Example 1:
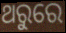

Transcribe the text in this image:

ଥରୁରେ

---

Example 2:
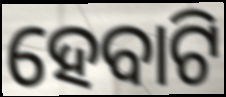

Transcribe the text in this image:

ହେବାଟି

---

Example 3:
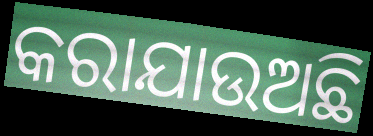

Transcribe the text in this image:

କରାଯାଉଅଛି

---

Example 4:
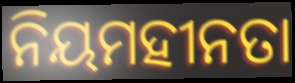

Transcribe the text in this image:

ନିୟମହୀନତା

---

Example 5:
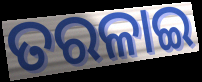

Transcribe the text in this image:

ତରଳାଇ